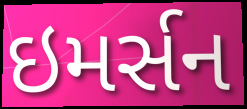
ઇમર્સન